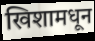
खिशामधून